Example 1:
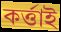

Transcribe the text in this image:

কৰ্ত্তাই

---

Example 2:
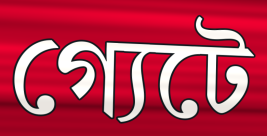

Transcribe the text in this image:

গ্যেটে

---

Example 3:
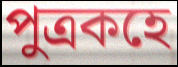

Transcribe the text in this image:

পুত্ৰকহে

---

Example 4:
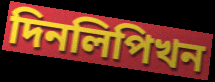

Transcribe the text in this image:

দিনলিপিখন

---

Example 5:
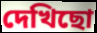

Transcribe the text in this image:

দেখিছো